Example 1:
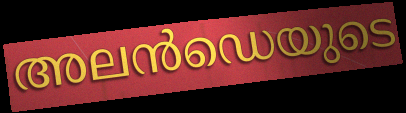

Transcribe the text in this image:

അലൻഡെയുടെ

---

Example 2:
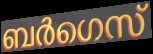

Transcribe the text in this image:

ബർഗെസ്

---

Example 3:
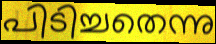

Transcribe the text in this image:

പിടിച്ചതെന്നു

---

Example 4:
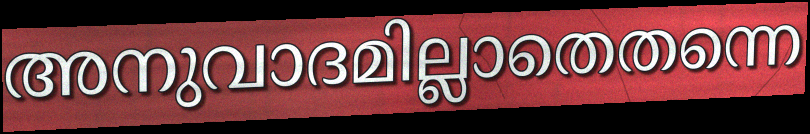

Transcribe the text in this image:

അനുവാദമില്ലാതെതന്നെ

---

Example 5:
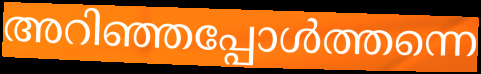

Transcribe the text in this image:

അറിഞ്ഞപ്പോൾത്തന്നെ